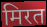
मिरत